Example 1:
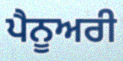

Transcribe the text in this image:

ਪੈਨੂਅਰੀ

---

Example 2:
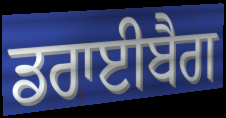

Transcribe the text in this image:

ਡਰਾਈਬੈਗ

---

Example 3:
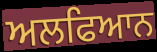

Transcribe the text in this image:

ਅਲਫਿਆਨ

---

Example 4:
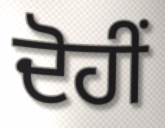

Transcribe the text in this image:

ਦੋਹੀਂ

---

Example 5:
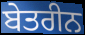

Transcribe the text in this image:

ਬੇਤਰੀਨ